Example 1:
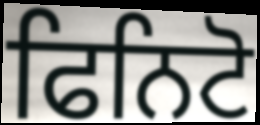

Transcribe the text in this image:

ਫਿਨਿਟੋ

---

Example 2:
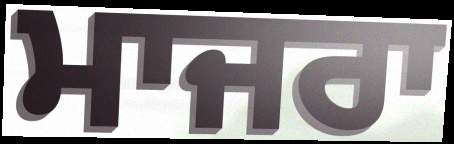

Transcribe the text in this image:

ਮਾਜਰਾ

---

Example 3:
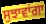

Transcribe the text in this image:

ਸੁਝਾਵਾਂਗਾ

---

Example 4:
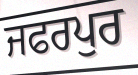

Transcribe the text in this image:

ਜਫਰਪੁਰ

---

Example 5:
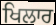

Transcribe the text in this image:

ਖਿਲਾਰ